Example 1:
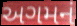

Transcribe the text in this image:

અગમનં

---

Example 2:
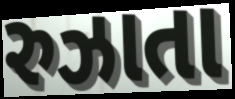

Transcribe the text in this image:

રુઝાતા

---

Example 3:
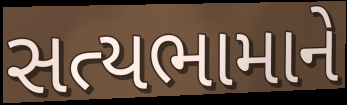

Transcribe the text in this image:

સત્યભામાને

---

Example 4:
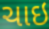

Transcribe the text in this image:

ચાઇ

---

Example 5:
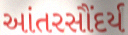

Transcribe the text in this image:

આંતરસૌંદર્ય